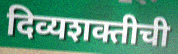
दिव्यशक्तीची